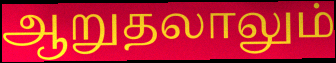
ஆறுதலாலும்